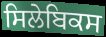
ਸਿਲੇਬਿਕਸ